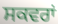
ਸਕਵਰਾਂ